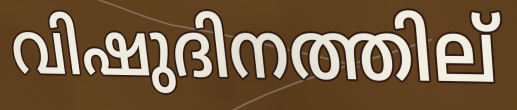
വിഷുദിനത്തില്